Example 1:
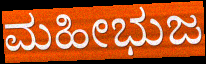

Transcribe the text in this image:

ಮಹೀಭುಜ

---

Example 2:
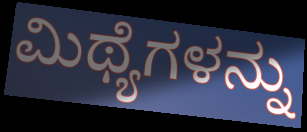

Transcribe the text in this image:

ಮಿಥ್ಯೆಗಳನ್ನು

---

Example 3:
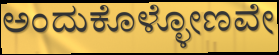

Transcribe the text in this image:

ಅಂದುಕೊಳ್ಳೋಣವೇ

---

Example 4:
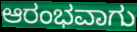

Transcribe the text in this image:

ಆರಂಭವಾಗು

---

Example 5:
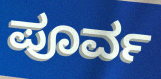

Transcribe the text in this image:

ಪೂರ್ವ